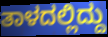
ತಾಳದಲ್ಲಿದ್ದು